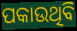
ପକାଉଥିବି